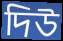
দিউ